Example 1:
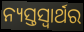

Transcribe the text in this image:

ନ୍ୟସ୍ତସ୍ୱାର୍ଥର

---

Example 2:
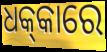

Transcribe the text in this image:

ଧକ୍‌କାରେ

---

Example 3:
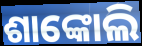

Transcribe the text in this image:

ଶାଙ୍କୋଲି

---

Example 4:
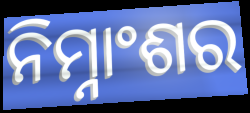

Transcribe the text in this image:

ନିମ୍ନାଂଶର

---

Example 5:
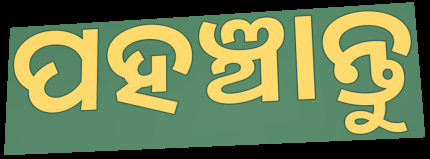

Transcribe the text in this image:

ପହଞ୍ଚାନ୍ତୁ